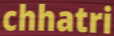
chhatri